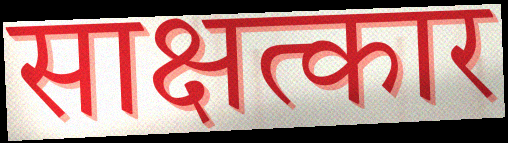
साक्षत्कार